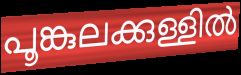
പൂങ്കുലക്കുള്ളിൽ